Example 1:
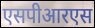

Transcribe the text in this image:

एसपीआरएस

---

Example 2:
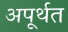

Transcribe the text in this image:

अपूर्थत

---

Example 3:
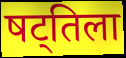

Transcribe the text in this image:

षट्तिला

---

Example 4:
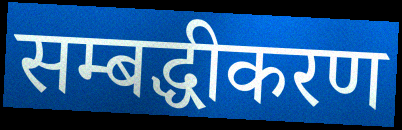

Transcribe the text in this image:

सम्बद्धीकरण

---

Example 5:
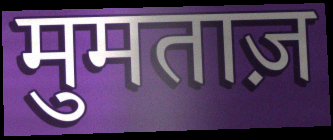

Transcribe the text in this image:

मुमताज़